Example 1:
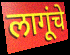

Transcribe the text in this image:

लागूंचे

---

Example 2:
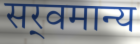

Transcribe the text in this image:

सर्वमान्य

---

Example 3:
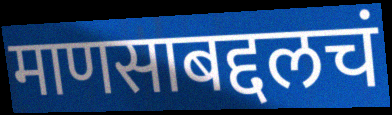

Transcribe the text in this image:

माणसाबद्दलचं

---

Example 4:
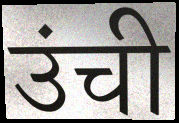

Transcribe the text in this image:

उंची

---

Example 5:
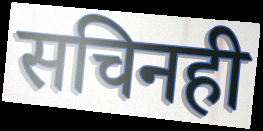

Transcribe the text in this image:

सचिनही